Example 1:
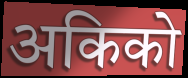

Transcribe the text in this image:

अकिको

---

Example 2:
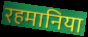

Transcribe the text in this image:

रहमानिया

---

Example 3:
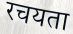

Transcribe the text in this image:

रचयता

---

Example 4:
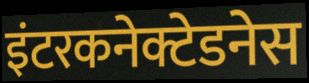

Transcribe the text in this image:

इंटरकनेक्टेडनेस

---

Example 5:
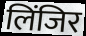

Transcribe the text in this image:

लिंजिर